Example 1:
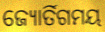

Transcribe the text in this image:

ଜ୍ୟୋର୍ତିଗମୟ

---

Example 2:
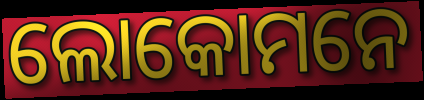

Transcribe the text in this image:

ଲୋକୋମନେ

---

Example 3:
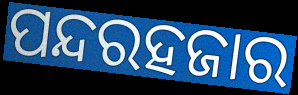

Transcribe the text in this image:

ପନ୍ଦରହଜାର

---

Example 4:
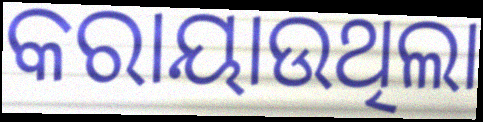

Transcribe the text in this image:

କରାୟାଉଥିଲା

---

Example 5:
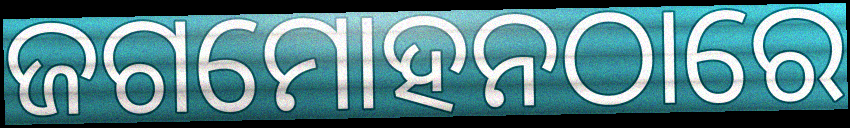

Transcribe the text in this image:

ଜଗମୋହନଠାରେ